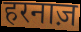
हरनाज़